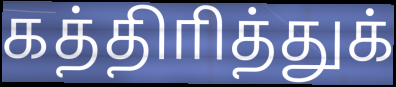
கத்திரித்துக்